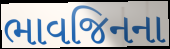
ભાવજિનના